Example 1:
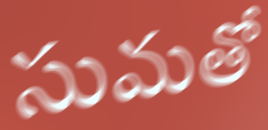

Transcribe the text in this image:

సుమతో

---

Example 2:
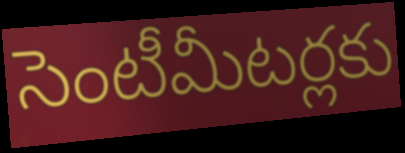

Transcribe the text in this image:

సెంటీమీటర్లకు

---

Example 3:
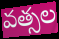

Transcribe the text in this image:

వత్సల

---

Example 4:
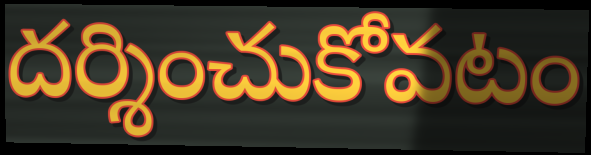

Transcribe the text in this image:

దర్శించుకోవటం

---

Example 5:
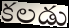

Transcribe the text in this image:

కలడు